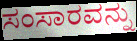
ಸಂಸಾರವನ್ನು